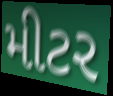
મીટર